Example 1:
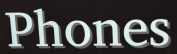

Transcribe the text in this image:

Phones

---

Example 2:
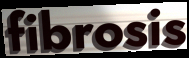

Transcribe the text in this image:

fibrosis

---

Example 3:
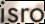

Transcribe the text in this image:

isro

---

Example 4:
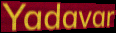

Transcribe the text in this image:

Yadavar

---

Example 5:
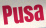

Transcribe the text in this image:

Pusa